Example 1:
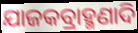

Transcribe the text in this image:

ଯାଜକବ୍ରାହ୍ମଣାଦି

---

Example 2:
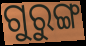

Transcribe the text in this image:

ଗୁରୁଙ୍ଗ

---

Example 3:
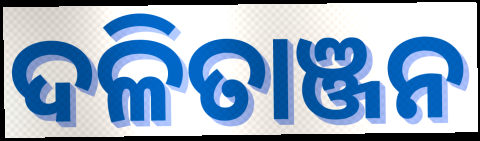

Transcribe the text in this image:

ଦଳିତାଞ୍ଜନ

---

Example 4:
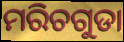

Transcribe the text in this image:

ମରିଚଗୁଡା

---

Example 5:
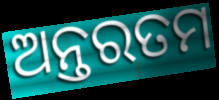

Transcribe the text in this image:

ଅନ୍ତରତମ